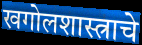
खगोलशास्त्राचे